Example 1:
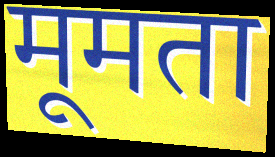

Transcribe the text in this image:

मूमता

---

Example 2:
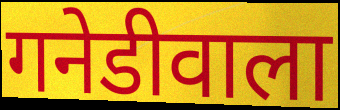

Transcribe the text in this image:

गनेडीवाला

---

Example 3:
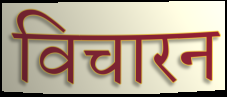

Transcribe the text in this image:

विचारन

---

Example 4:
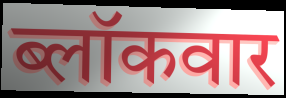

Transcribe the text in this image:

ब्लॉकवार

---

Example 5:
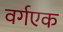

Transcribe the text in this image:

वर्गएक